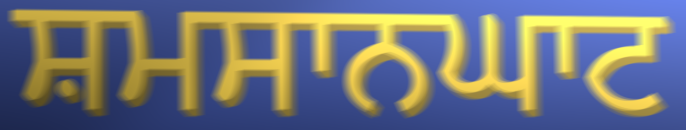
ਸ਼ਮਸਾਨਘਾਟ